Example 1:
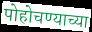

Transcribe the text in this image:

पोहोचण्याच्या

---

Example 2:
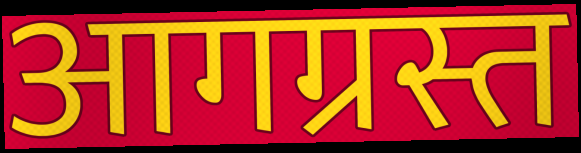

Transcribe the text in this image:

आगग्रस्त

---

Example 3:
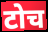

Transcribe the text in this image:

टोच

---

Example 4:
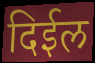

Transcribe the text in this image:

दिईल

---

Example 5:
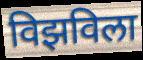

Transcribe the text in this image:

विझविला